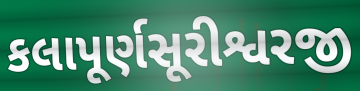
કલાપૂર્ણસૂરીશ્વરજી